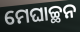
ମେଘାଚ୍ଛନ